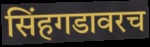
सिंहगडावरच